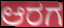
ಆರಗ